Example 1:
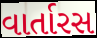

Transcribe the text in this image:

વાર્તારસ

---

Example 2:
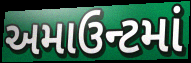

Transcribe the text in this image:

અમાઉન્ટમાં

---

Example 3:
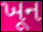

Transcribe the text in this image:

ખૂન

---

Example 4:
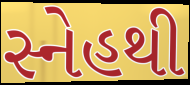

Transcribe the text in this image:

સ્નેહથી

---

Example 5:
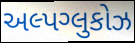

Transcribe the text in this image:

અલ્પગ્લુકોઝ